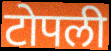
टोपली